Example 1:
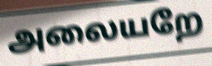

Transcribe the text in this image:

அலையறே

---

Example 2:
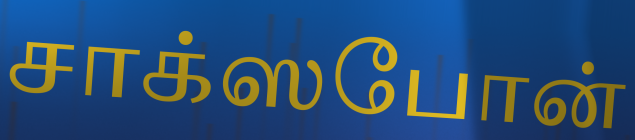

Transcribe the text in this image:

சாக்ஸபோன்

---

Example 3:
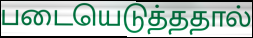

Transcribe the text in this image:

படையெடுத்ததால்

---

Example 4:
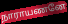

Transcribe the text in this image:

நாராயணனே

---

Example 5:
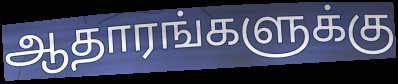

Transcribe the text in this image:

ஆதாரங்களுக்கு